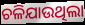
ଚଳିଯାଉଥିଲା